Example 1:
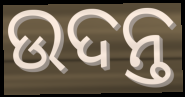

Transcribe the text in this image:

ଉଦନ୍ତ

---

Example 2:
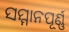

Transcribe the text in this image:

ସମ୍ମାନପୂର୍ଣ୍ଣ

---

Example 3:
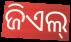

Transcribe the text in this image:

ଜିଏଲ୍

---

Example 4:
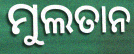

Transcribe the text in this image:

ମୁଲତାନ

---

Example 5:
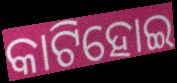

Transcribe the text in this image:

କାଟିହୋଇ